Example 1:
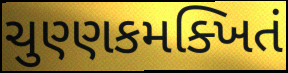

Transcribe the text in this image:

ચુણ્ણકમક્ખિતં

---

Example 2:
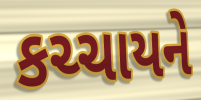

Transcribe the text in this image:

કચ્ચાયને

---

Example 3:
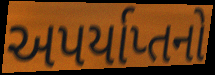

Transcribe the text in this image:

અપર્યાપ્તનો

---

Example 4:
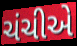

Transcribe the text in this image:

ચંચીએ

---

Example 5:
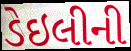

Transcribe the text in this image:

ડેઇલીની